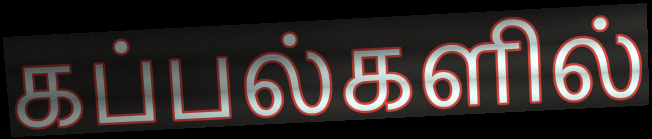
கப்பல்களில்